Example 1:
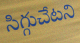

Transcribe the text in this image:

సిగ్గుచేటని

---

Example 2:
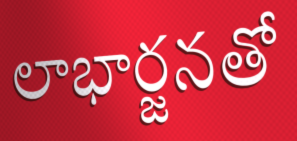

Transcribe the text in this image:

లాభార్జనతో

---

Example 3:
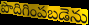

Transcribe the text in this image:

పొదిగింపబడెను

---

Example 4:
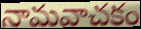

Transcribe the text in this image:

నామవాచకం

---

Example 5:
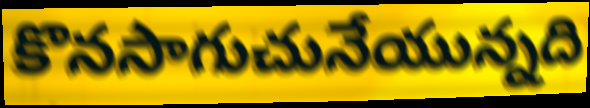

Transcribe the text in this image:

కొనసాగుచునేయున్నది